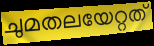
ചുമതലയേറ്റത്